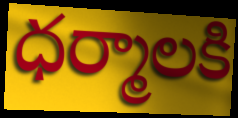
ధర్మాలకి